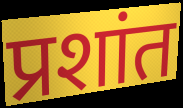
प्रशांत